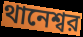
থানেশ্বর